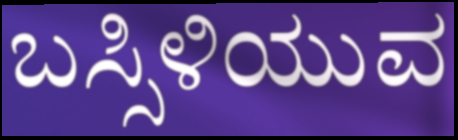
ಬಸ್ಸಿಳಿಯುವ